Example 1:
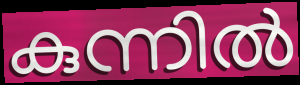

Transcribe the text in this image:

കുന്നിൽ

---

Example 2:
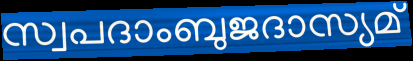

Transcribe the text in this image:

സ്വപദാംബുജദാസ്യമ്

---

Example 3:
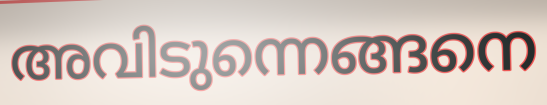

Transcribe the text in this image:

അവിടുന്നെങ്ങനെ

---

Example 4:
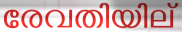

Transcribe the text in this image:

രേവതിയില്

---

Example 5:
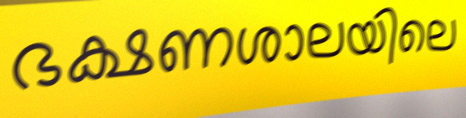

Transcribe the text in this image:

ഭക്ഷണശാലയിലെ